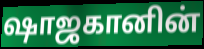
ஷாஜகானின்